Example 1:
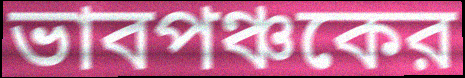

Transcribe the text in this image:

ভাবপঞ্চকের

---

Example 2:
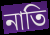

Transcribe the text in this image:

নাতি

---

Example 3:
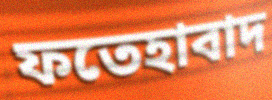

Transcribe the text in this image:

ফতেহাবাদ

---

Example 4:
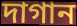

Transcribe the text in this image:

দাগান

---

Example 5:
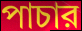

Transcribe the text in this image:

পাচার